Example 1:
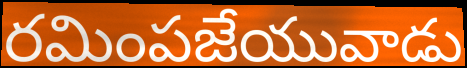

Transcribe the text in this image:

రమింపజేయువాడు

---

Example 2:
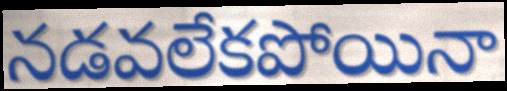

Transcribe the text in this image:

నడవలేకపోయినా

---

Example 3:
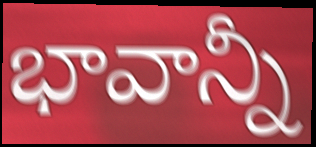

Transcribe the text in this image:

భావాన్నీ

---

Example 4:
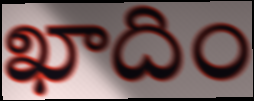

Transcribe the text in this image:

ఖాదిం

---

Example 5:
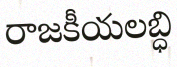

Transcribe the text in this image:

రాజకీయలబ్ధి